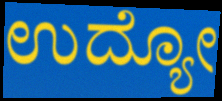
ಉದ್ಯೋ